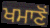
ਖਮਾਣੋਂ